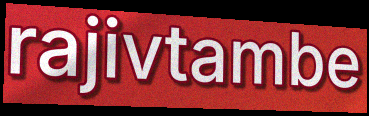
rajivtambe